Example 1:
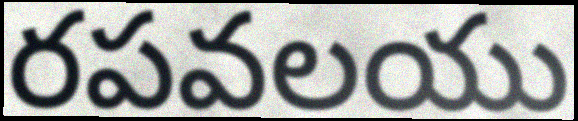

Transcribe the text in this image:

రపవలయు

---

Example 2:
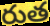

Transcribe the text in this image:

రుత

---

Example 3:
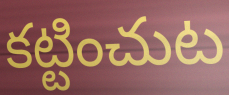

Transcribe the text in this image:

కట్టించుట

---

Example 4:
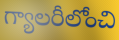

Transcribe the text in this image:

గ్యాలరీలోంచి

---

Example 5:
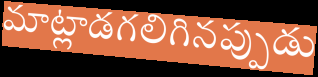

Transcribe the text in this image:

మాట్లాడగలిగినప్పుడు